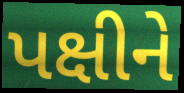
પક્ષીને